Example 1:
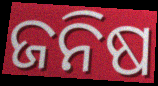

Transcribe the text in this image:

ଜନିଷ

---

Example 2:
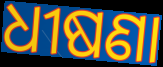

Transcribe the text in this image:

ଧୀଷଣା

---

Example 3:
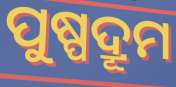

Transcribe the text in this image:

ପୁଷ୍ପଦ୍ରୂମ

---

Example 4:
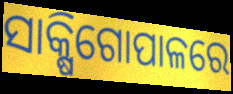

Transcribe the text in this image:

ସାକ୍ଷିଗୋପାଳରେ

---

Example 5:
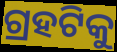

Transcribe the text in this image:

ଗ୍ରହଟିକୁ